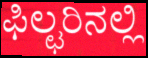
ಫಿಲ್ಟರಿನಲ್ಲಿ